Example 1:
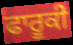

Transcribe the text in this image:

ਫਾਰੂਕੀ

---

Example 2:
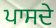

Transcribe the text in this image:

ਪਾਸਦੇ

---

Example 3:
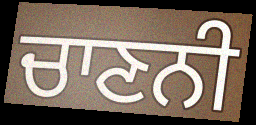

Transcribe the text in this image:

ਚਾਣਨੀ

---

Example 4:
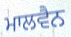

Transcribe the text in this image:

ਮਾਲਵੈਨ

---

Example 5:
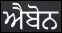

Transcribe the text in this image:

ਐਬੋਨ